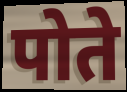
पोते